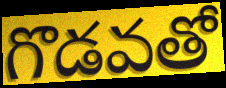
గొడవతో